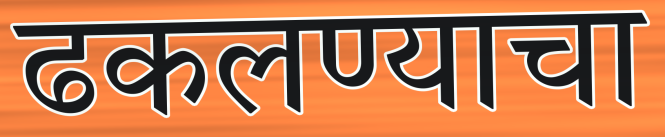
ढकलण्याचा